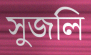
সুজলি